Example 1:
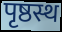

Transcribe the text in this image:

पृष्ठस्थ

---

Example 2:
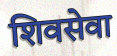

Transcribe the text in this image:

शिवसेवा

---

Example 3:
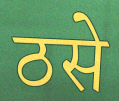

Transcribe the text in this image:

ठसे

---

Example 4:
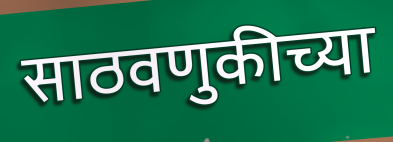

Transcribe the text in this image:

साठवणुकीच्या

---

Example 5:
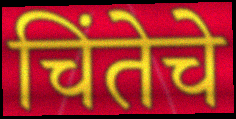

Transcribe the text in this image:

चिंतेचे